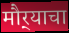
मौर्याचा